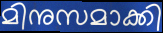
മിനുസമാക്കി